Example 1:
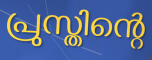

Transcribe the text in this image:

പ്രുസ്തിന്റെ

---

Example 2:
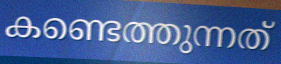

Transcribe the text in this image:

കണ്ടെത്തുന്നത്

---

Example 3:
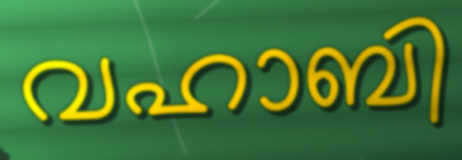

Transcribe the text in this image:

വഹാബി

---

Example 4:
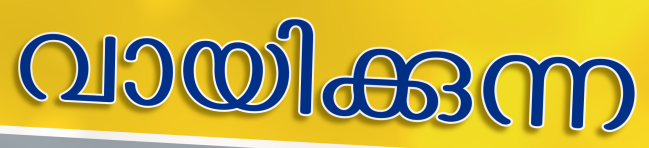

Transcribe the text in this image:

വായിക്കുന്ന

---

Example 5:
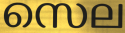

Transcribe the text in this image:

സെല